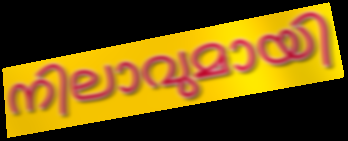
നിലാവുമായി